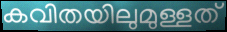
കവിതയിലുമുള്ളത്